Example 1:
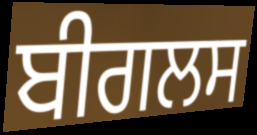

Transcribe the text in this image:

ਬੀਗਲਸ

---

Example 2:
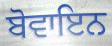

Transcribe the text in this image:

ਬੋਵਾਇਨ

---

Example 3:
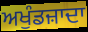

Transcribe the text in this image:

ਅਖੁੰਡਜ਼ਾਦਾ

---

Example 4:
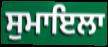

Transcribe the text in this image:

ਸੁਮਾਇਲਾ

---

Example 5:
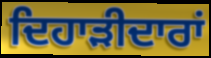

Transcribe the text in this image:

ਦਿਹਾੜੀਦਾਰਾਂ